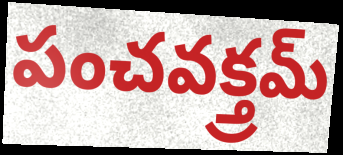
పంచవక్త్రమ్